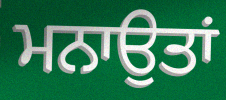
ਮਨਾਉਤਾਂ